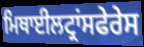
ਮਿਥਾਈਲਟ੍ਰਾਂਸਫੇਰੇਸ